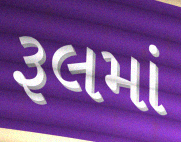
રૂલમાં